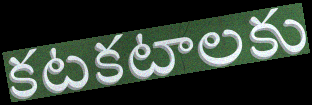
కటకటాలకు